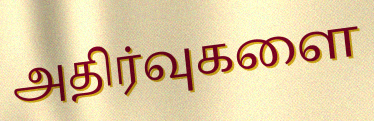
அதிர்வுகளை